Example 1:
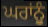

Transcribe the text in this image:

ਘਰਾਂਨੂੰ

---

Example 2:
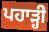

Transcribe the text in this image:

ਪਹਾੜ੍ਹੀ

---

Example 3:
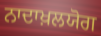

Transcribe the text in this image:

ਨਾਦਾਖ਼ਲਯੋਗ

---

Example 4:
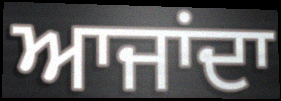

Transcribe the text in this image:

ਆਜਾਂਦਾ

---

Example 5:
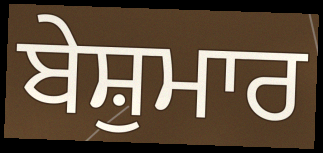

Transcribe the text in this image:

ਬੇਸ਼ੁਮਾਰ